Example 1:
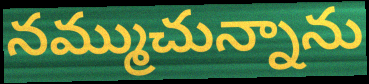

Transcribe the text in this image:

నమ్ముచున్నాను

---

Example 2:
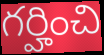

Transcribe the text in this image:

గర్హించి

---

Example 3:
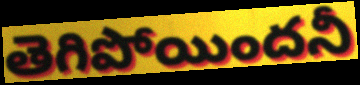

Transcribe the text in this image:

తెగిపోయిందనీ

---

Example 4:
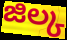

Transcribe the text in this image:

జిల్క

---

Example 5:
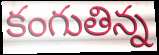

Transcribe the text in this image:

కంగుతిన్న